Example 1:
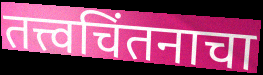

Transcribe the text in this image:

तत्त्वचिंतनाचा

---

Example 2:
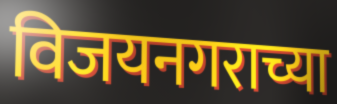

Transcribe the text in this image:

विजयनगराच्या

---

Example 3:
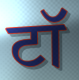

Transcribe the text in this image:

टॉ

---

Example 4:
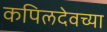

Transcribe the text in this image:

कपिलदेवच्या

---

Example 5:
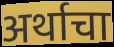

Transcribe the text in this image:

अर्थाचा